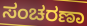
ಸಂಚರಣಾ